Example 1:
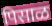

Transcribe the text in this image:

पिसाळ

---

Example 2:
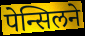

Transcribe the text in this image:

पेन्सिलने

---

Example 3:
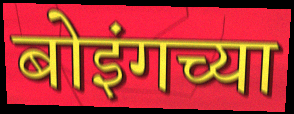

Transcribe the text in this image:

बोइंगच्या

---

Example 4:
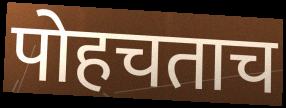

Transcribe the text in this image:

पोहचताच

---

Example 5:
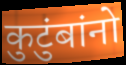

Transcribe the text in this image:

कुटुंबांनो